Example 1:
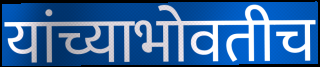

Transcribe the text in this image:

यांच्याभोवतीच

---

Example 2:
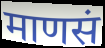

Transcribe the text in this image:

माणसं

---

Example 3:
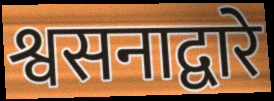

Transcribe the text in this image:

श्वसनाद्वारे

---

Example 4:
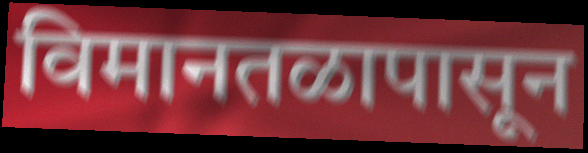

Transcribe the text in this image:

विमानतळापासून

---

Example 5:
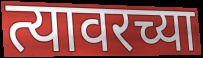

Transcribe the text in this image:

त्यावरच्या